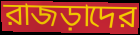
রাজড়াদের